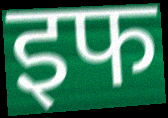
इफ